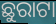
ଛୁରାଟା